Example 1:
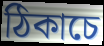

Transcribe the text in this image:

ঠিকাচে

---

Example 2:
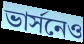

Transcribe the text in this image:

ভার্সনেও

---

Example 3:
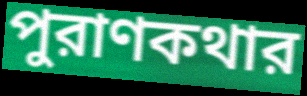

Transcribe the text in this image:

পুরাণকথার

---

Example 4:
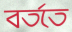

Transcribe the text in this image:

বর্ততে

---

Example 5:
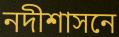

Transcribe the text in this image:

নদীশাসনে